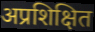
अप्रशिक्षित